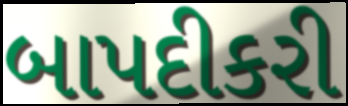
બાપદીકરી